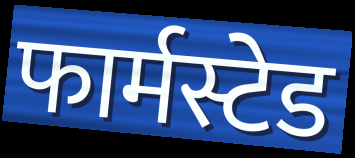
फार्मस्टेड